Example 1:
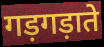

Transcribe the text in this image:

गड़गड़ाते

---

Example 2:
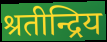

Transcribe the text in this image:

श्रतीन्द्रिय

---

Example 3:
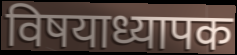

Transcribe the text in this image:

विषयाध्यापक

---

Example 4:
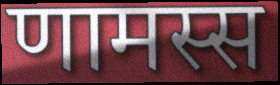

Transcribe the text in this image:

णामस्स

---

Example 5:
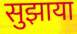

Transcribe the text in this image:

सुझाया